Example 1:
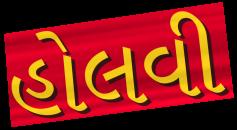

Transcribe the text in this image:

હોલવી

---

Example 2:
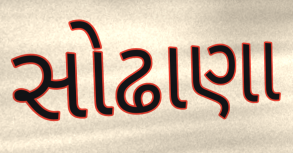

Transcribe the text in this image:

સોઢાણા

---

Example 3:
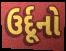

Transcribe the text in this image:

ઉર્દૂનો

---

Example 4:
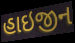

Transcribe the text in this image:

હાઇજીન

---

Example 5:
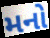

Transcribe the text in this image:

મનો